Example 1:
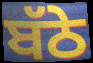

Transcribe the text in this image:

ਬੱਠੇ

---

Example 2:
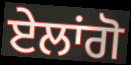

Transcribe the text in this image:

ਏਲਾਂਗੋ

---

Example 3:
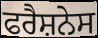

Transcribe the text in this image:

ਫਰੈਸ਼ਨੇਸ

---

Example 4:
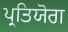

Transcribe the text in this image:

ਪ੍ਰਤਿਯੋਗ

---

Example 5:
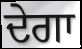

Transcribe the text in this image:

ਦੇਗਾ